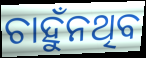
ଚାହୁଁନଥିବ